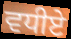
ਵਧੀਏ